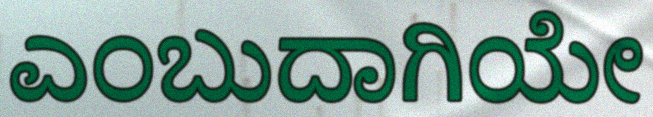
ಎಂಬುದಾಗಿಯೇ